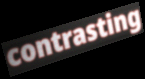
contrasting